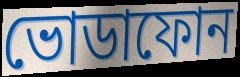
ভোডাফোন